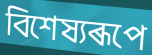
বিশেষ্যৰূপে